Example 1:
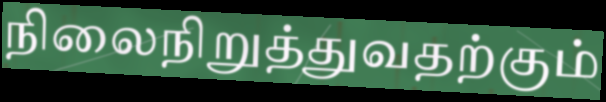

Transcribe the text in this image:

நிலைநிறுத்துவதற்கும்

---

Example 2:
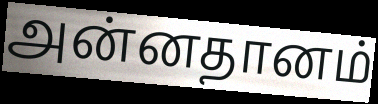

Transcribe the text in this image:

அன்னதானம்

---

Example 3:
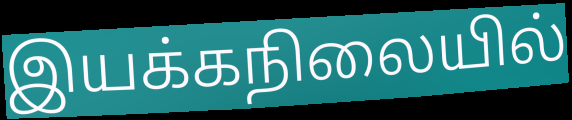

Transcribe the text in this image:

இயக்கநிலையில்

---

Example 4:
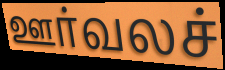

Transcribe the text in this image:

ஊர்வலச்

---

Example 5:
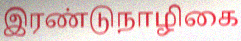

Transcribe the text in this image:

இரண்டுநாழிகை